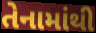
તેનામાંથી